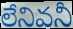
లేనివనీ